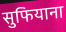
सुफियाना